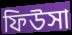
ফিউসা